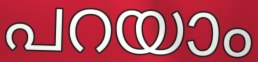
പറയാം